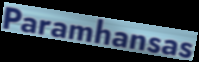
Paramhansas